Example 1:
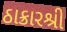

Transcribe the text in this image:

ઠાક્રારશ્રી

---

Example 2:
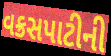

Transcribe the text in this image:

વક્રસપાટીની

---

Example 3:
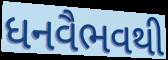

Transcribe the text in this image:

ધનવૈભવથી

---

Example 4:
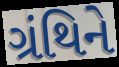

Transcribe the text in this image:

ગ્રંથિને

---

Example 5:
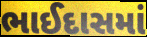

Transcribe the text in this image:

ભાઈદાસમાં